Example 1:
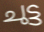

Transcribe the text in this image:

ചുട്ട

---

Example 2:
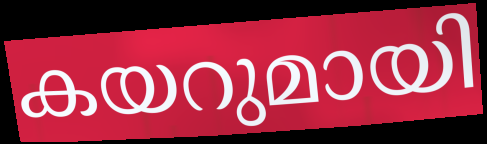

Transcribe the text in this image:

കയറുമായി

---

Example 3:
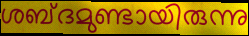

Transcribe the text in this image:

ശബ്ദമുണ്ടായിരുന്നു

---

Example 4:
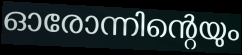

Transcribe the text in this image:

ഓരോന്നിന്റെയും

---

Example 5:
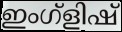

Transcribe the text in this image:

ഇംഗ്ളിഷ്